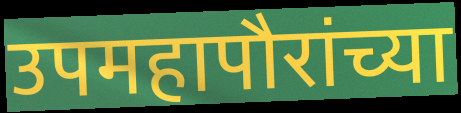
उपमहापौरांच्या